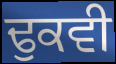
ਢੁਕਵੀ